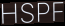
HSPF